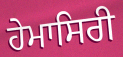
ਹੇਮਾਸਿਰੀ